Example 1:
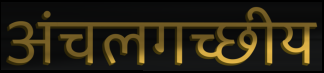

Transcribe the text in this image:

अंचलगच्छीय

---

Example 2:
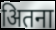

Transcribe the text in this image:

अितना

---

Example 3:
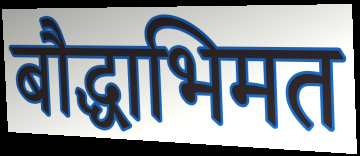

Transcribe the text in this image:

बौद्धाभिमत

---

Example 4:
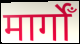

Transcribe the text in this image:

मार्गोँ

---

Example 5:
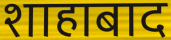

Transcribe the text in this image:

शाहाबाद